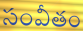
సంవీతం